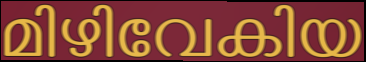
മിഴിവേകിയ